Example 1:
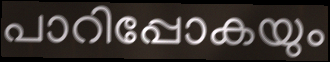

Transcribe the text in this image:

പാറിപ്പോകയും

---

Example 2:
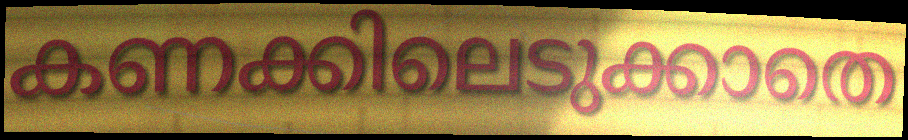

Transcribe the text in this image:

കണക്കിലെടുക്കാതെ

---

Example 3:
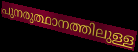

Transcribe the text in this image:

പുനരുത്ഥാനത്തിലുള്ള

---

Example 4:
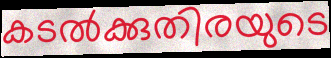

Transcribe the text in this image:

കടൽക്കുതിരയുടെ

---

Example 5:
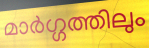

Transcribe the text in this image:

മാർഗ്ഗത്തിലും